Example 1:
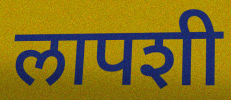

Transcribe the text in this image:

लापशी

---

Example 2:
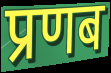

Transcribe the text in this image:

प्रणब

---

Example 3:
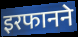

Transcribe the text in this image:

इरफानने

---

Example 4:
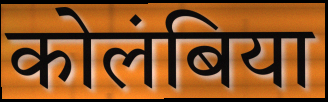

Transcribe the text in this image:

कोलंबिया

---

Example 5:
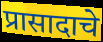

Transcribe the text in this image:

प्रासादाचे